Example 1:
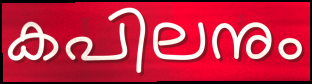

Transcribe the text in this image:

കപിലനും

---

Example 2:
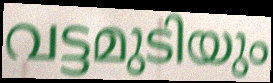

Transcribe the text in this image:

വട്ടമുടിയും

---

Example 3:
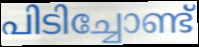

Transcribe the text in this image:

പിടിച്ചോണ്ട്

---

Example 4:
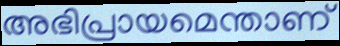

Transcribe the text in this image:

അഭിപ്രായമെന്താണ്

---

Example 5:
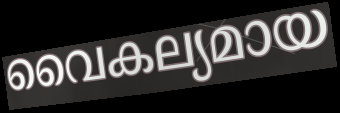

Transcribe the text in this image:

വൈകല്യമായ